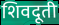
शिवदूती